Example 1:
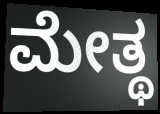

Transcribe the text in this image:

ಮೇತ್ಥ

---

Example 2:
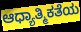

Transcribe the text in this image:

ಆಧ್ಯಾತ್ಮಿಕತೆಯ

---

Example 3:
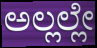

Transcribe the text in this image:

ಅಲ್ಲಲ್ಲೇ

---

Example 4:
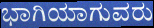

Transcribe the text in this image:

ಭಾಗಿಯಾಗುವರು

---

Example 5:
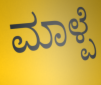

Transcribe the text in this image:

ಮಾಳ್ಪೆ